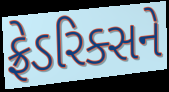
ફ્રેડરિક્સને